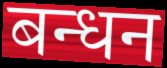
बन्धन